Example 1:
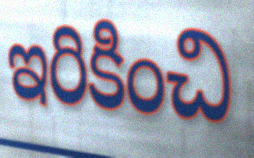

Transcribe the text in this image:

ఇరికించి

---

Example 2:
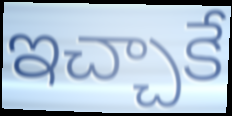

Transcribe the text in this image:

ఇచ్చాకే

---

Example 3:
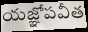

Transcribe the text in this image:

యజ్ఞోపవీత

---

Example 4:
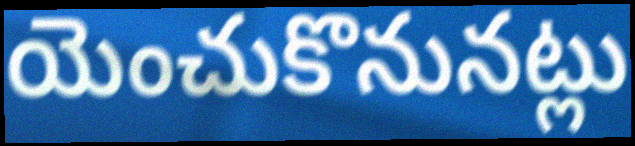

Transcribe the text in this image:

యెంచుకొనునట్లు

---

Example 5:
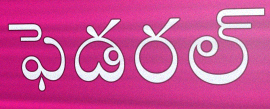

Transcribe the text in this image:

ఫెడరల్